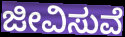
ಜೀವಿಸುವೆ